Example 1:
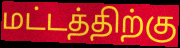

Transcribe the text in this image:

மட்டத்திற்கு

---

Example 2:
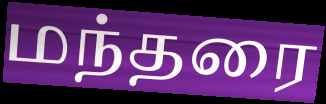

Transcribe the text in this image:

மந்தரை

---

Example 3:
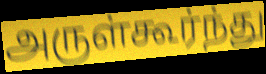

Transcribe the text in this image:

அருள்கூர்ந்து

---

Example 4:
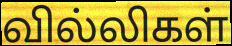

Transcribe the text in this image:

வில்லிகள்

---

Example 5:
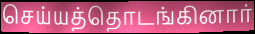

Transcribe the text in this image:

செய்யத்தொடங்கினார்